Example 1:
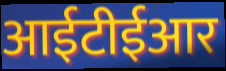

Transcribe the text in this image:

आईटीईआर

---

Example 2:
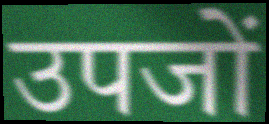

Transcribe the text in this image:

उपजों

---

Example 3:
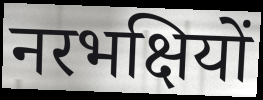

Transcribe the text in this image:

नरभक्षियों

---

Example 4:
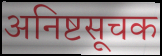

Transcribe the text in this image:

अनिष्टसूचक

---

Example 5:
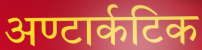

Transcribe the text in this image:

अण्टार्कटिक